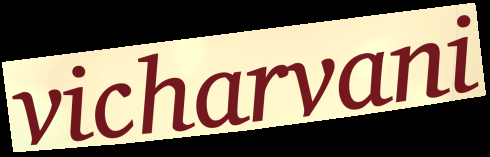
vicharvani